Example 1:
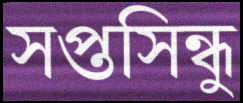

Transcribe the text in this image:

সপ্তসিন্ধু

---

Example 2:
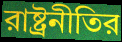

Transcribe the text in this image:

রাষ্ট্রনীতির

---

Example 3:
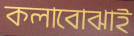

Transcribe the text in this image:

কলাবোঝাই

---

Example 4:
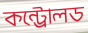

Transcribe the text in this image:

কন্ট্রোলড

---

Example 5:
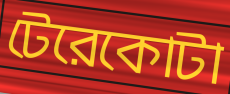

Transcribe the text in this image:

টেরেকোটা